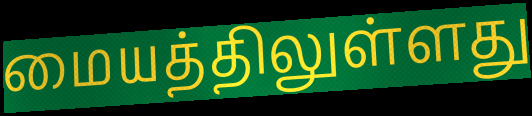
மையத்திலுள்ளது